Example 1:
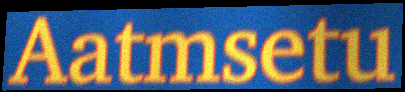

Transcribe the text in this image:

Aatmsetu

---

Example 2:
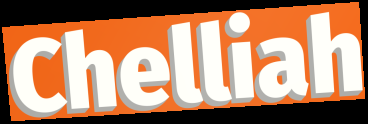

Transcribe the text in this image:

Chelliah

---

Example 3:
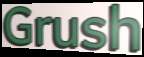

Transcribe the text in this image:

Grush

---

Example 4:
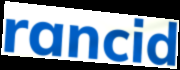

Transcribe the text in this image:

rancid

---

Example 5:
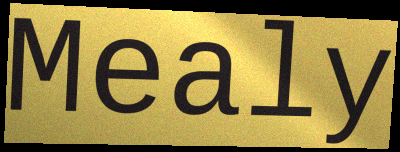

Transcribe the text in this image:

Mealy